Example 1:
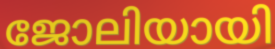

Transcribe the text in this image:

ജോലിയായി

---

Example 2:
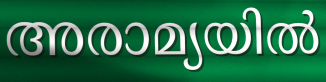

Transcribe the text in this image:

അരാമ്യയിൽ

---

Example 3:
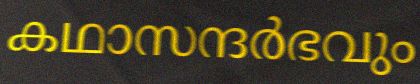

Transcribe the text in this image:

കഥാസന്ദർഭവും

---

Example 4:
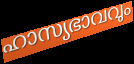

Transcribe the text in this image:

ഹാസ്യഭാവവും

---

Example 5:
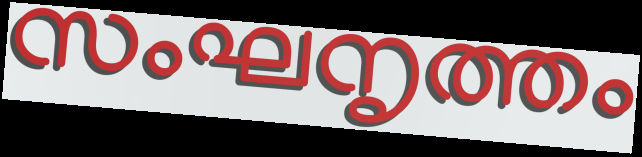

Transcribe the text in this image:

സംഘനൃത്തം